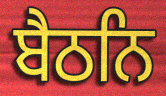
ਬੈਠਨਿ